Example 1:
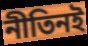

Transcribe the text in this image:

নীতিনই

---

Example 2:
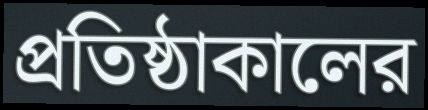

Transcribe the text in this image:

প্রতিষ্ঠাকালের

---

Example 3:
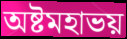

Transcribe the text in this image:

অষ্টমহাভয়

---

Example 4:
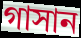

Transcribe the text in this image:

গাসান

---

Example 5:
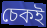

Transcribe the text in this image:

চেকই